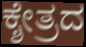
ಕ್ಶೇತ್ರದ